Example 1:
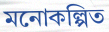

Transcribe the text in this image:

মনোকল্পিত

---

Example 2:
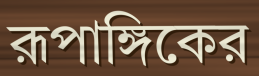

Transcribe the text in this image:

রূপাঙ্গিকের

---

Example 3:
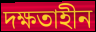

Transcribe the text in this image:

দক্ষতাহীন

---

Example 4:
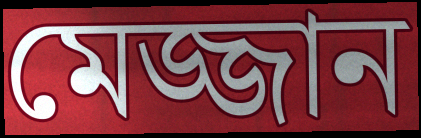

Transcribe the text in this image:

মেজ্জান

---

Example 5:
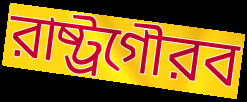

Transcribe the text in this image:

রাষ্ট্রগৌরব